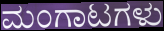
ಮಂಗಾಟಗಳು